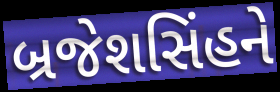
બ્રજેશસિંહને